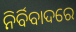
ନିର୍ବିବାଦରେ